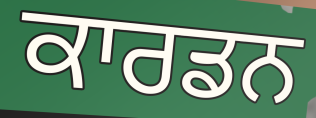
ਕਾਰਡਨ